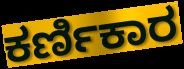
ಕರ್ಣಿಕಾರ